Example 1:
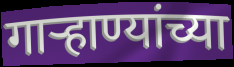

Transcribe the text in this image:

गाऱ्हाण्यांच्या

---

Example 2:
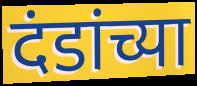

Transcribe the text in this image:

दंडांच्या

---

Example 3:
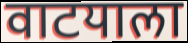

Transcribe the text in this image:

वाटयाला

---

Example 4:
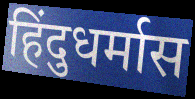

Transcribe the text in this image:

हिंदुधर्मास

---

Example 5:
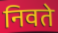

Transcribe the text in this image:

निवते